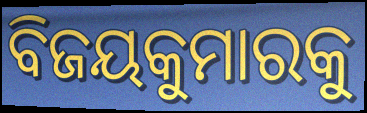
ବିଜୟକୁମାରକୁ